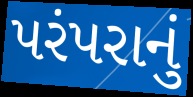
પરંપરાનું